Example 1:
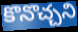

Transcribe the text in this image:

కొనొచ్చని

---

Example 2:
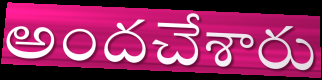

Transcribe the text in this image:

అందచేశారు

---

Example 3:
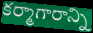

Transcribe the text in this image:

కర్మాగారాన్ని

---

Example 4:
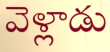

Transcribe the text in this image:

వెళ్లాడు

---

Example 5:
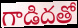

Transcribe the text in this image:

గాడిదతో